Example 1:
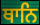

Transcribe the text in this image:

ਥਾਨਿ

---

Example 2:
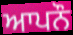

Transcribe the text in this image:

ਆਪਨੌ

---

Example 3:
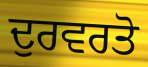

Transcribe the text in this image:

ਦੁਰਵਰਤੋ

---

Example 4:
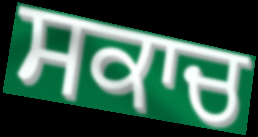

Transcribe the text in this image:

ਸਕਾਚ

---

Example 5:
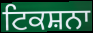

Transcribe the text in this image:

ਟਿਕਸ਼ਨਾ